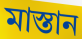
মাস্তান